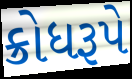
ક્રોધરૂપે